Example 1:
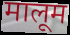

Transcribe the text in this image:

मालूम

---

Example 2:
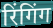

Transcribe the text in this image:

रिंगिंग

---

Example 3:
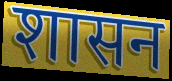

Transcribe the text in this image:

शासन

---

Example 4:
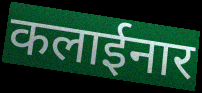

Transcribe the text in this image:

कलाईनार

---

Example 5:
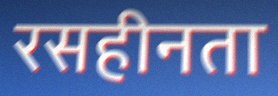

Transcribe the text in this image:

रसहीनता